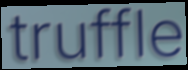
truffle